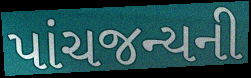
પાંચજન્યની